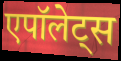
एपॉलेट्स